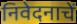
निवेदनाचें